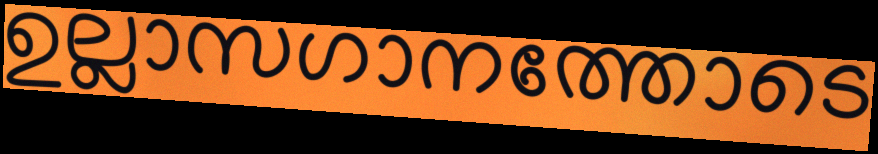
ഉല്ലാസഗാനത്തോടെ